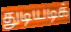
துடியடிக்